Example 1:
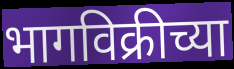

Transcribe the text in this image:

भागविक्रीच्या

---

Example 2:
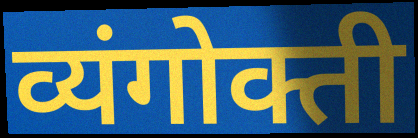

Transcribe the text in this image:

व्यंगोक्ती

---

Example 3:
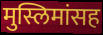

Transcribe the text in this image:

मुस्लिमांसह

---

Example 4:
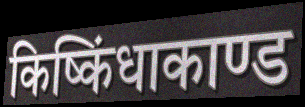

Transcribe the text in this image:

किष्किंधाकाण्ड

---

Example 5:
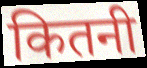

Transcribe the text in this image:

कितनी